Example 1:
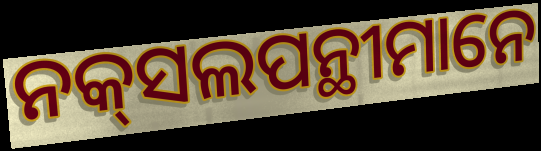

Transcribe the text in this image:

ନକ୍‌ସଲପନ୍ଥୀମାନେ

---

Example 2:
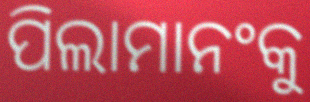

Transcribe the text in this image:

ପିଲାମାନଂକୁ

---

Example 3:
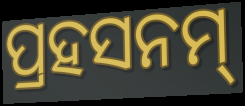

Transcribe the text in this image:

ପ୍ରହସନମ୍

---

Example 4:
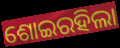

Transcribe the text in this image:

ଶୋଇରହିଲା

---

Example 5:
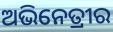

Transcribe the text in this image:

ଅଭିନେତ୍ରୀର